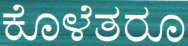
ಕೊಳೆತರೂ